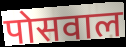
पोसवाल